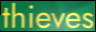
thieves